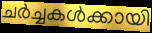
ചർച്ചകൾക്കായി